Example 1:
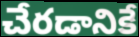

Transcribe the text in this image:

చేరడానికే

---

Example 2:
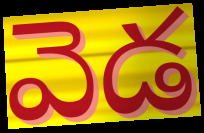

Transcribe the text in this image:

వెడ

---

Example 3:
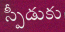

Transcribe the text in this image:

స్పీడుకు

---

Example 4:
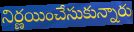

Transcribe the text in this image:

నిర్ణయించేసుకున్నారు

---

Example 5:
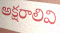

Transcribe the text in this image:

అక్షరాలివి